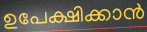
ഉപേക്ഷിക്കാൻ